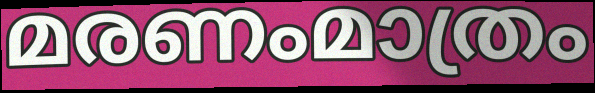
മരണംമാത്രം